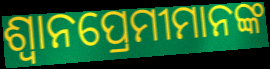
ଶ୍ଵାନପ୍ରେମୀମାନଙ୍କ